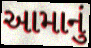
આમાનું